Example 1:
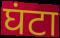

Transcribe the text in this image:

घंटा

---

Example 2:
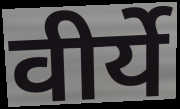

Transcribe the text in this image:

वीर्ये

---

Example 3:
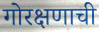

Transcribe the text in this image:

गोरक्षणाची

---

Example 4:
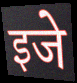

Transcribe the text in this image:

इजे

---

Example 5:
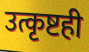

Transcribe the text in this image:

उत्कृष्टही